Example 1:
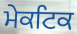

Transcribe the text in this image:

ਮੇਕਟਿਕ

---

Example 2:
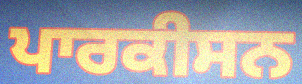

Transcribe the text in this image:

ਪਾਰਕੀਸਨ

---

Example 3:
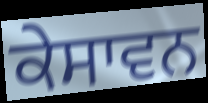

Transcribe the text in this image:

ਕੇਸਾਵਨ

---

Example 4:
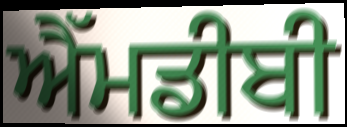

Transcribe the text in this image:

ਐੱਮਡੀਬੀ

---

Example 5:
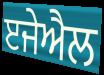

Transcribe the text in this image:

ੲਜੇਐਲ